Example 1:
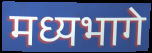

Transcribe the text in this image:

मध्यभागे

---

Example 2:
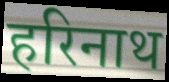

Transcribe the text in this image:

हरिनाथ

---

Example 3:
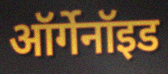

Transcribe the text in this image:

ऑर्गेनॉइड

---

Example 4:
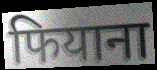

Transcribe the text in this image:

फियाना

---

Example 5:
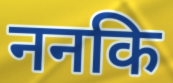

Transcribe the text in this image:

ननकि